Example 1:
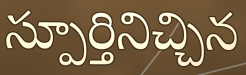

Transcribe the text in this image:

స్పూర్తినిచ్చిన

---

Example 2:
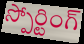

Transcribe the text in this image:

స్పోర్టింగ్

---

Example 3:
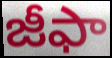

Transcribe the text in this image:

జీఫా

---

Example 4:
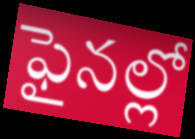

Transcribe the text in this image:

ఫైనల్లో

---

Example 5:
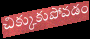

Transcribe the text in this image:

చిక్కుకుపోవడం